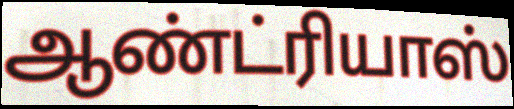
ஆண்ட்ரியாஸ்